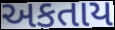
અકતાય